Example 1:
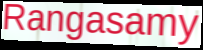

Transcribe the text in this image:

Rangasamy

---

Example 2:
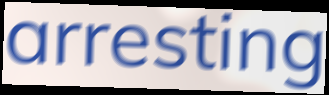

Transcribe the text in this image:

arresting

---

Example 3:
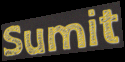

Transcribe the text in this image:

Sumit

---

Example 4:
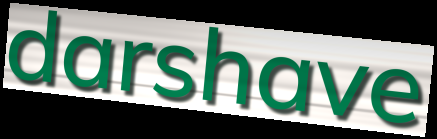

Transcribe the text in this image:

darshave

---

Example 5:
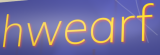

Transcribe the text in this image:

hwearf